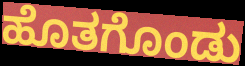
ಹೊತಗೊಂಡು